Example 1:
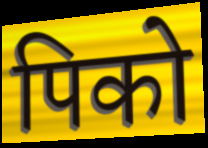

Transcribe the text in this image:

पिको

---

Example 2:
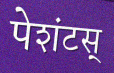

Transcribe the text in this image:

पेशंटस्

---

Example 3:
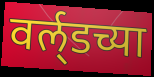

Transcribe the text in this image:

वर्ल्डच्या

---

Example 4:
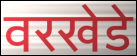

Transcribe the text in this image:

वरखेडे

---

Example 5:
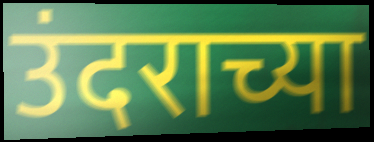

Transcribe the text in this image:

उंदराच्या